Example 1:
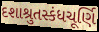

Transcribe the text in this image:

દશાશ્રુતસ્કંધચૂર્ણિ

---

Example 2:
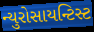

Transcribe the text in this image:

ન્યુરોસાયન્ટિસ્ટ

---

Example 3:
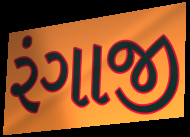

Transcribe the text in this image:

રંગાજી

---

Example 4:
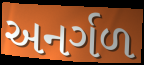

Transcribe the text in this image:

અનર્ગળ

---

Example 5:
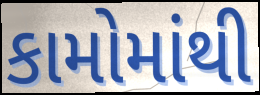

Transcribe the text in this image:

કામોમાંથી